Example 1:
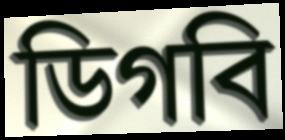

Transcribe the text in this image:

ডিগবি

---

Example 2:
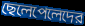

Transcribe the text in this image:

ছেলেপেলেদের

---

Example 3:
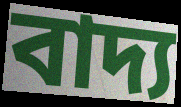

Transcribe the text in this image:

বাদ্য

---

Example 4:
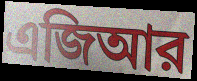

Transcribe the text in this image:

এজিআর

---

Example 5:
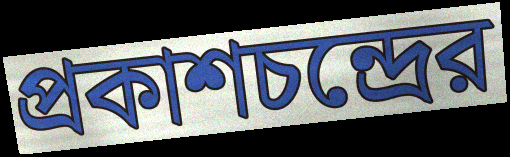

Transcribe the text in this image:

প্রকাশচন্দ্রের